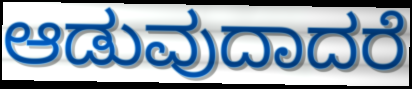
ಆಡುವುದಾದರೆ